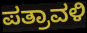
ಪತ್ರಾವಳಿ